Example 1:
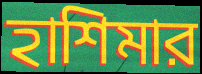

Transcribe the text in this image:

হাশিমার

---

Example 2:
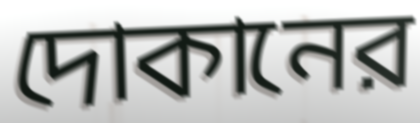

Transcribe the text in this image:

দোকানের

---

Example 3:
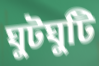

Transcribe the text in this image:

ঘুটঘুটি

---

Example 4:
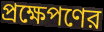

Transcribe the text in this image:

প্রক্ষেপণের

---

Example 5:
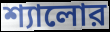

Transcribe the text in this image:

শ্যালোর